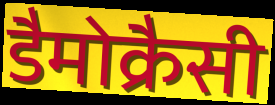
डैमोक्रैसी